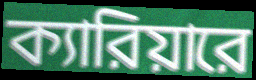
ক্যারিয়ারে